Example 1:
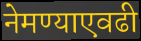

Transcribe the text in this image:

नेमण्याएवढी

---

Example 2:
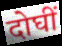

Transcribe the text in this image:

दोघीं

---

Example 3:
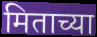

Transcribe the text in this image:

मिताच्या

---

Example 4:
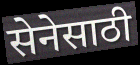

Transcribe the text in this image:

सेनेसाठी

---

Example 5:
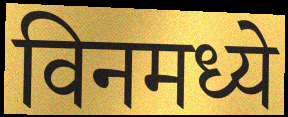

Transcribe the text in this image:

विनमध्ये